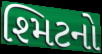
શ્મિટનો